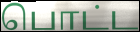
பொட்ட